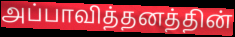
அப்பாவித்தனத்தின்